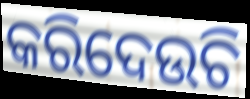
କରିଦେଉଚି